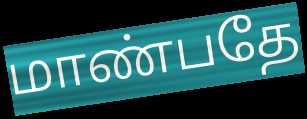
மாண்பதே